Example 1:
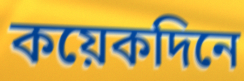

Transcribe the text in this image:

কয়েকদিনে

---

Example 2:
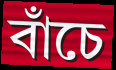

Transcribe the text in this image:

বাঁচে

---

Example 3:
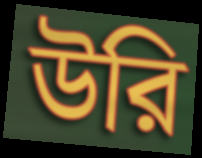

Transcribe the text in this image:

উরি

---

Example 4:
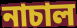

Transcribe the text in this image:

নাচাল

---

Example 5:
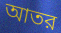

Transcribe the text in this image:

আতর